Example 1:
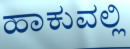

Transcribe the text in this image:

ಹಾಕುವಲ್ಲಿ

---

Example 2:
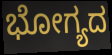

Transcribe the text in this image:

ಭೋಗ್ಯದ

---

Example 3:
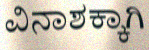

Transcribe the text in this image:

ವಿನಾಶಕ್ಕಾಗಿ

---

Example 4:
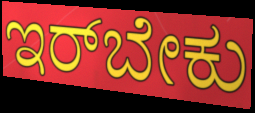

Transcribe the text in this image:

ಇರ್‌ಬೇಕು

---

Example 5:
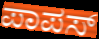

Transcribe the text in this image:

ಪಾಪಸ್